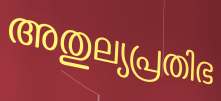
അതുല്യപ്രതിഭ